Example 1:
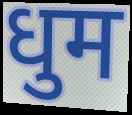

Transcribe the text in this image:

धुम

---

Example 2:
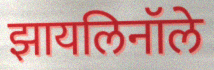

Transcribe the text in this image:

झायलिनॉले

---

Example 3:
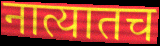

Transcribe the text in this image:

नात्यातच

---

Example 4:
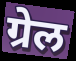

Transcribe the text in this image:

ग्रेल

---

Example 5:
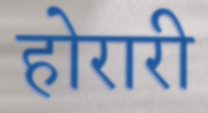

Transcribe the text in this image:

होरारी